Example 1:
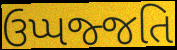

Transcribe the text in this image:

ઉપ્પજ્જતિ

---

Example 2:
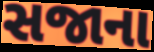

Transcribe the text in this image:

સજાના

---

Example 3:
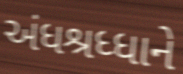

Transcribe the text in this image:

અંધશ્રધ્ધાને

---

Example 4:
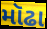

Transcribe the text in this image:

મૉઢા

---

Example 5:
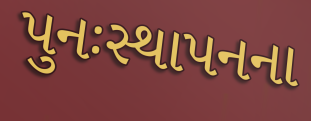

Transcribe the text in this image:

પુનઃસ્થાપનના